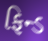
ફિન્ડ